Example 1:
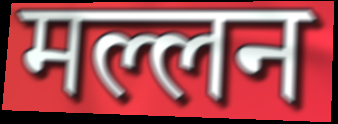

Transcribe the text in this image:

मल्लन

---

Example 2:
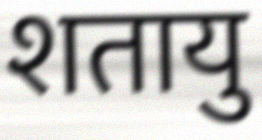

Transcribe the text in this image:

शतायु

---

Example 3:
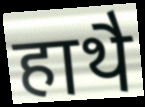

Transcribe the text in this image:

हाथै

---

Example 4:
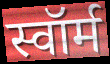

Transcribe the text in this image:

स्वॉर्म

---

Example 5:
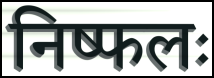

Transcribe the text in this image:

निष्फलः